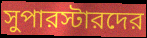
সুপারস্টারদের